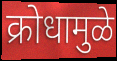
क्रोधामुळे